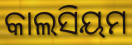
କାଲସିୟମ